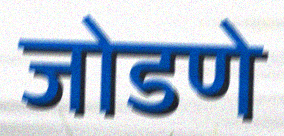
जोडणे